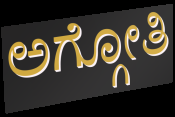
ಅಗ್ಗೋತಿ